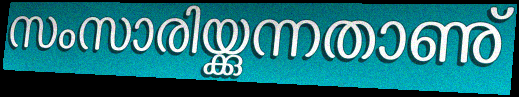
സംസാരിയ്ക്കുന്നതാണു്